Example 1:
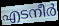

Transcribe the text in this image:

എടനീർ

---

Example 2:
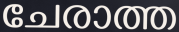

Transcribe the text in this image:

ചേരാത്ത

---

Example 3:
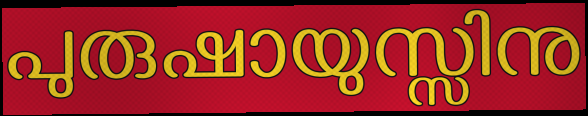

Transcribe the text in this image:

പുരുഷായുസ്സിനു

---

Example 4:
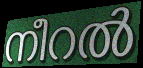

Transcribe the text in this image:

നീറൽ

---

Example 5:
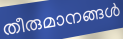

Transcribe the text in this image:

തീരുമാനങ്ങൾ